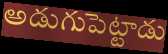
అడుగుపెట్టాడు